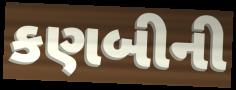
કણબીની